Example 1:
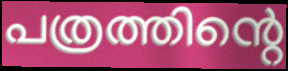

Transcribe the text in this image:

പത്രത്തിന്റെ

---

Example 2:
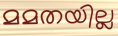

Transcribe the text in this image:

മമതയില്ല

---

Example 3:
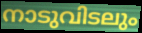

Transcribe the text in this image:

നാടുവിടലും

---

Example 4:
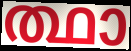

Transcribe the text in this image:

ത്ഥാ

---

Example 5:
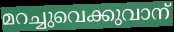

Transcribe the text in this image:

മറച്ചുവെക്കുവാന്